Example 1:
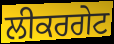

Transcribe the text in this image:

ਲੀਕਰਗੇਟ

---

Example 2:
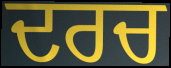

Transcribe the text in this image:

ਦਰਚ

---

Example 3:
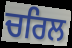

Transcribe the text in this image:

ਚਰਿਲ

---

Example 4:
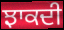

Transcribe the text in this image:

ਝਾਕਦੀ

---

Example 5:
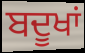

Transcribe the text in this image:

ਬਦੂਖਾਂ